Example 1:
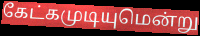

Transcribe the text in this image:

கேட்கமுடியுமென்று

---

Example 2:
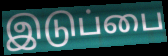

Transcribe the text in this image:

இடுப்பை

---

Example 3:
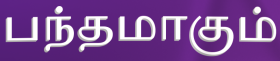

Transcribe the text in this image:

பந்தமாகும்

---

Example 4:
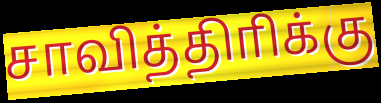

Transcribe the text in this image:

சாவித்திரிக்கு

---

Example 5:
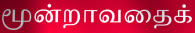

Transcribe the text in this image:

மூன்றாவதைக்